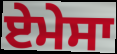
ਏਮੇਸਾ